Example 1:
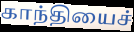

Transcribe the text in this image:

காந்தியைச்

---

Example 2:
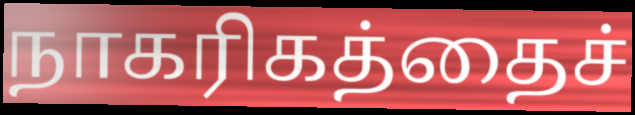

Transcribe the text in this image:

நாகரிகத்தைச்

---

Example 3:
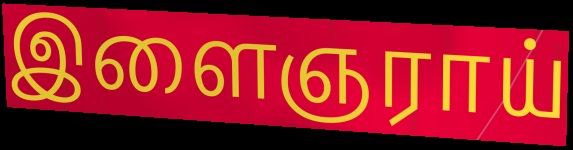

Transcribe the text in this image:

இளைஞராய்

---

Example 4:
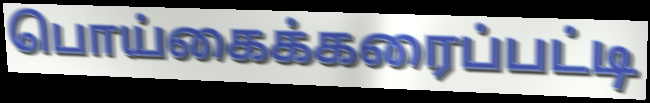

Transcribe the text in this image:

பொய்கைக்கரைப்பட்டி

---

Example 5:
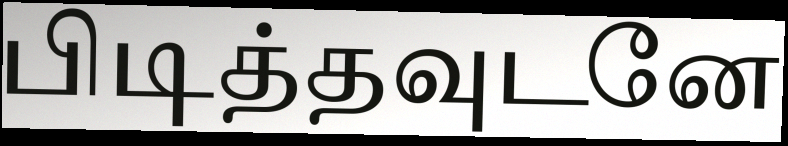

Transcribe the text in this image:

பிடித்தவுடனே